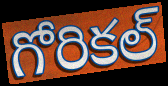
గోరికల్